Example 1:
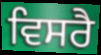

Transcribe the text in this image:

ਵਿਸਰੈ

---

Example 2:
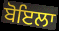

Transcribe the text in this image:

ਬੋਇਲਾ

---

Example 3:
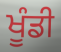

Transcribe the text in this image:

ਖੂੰਡੀ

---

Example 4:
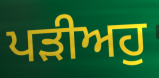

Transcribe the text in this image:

ਪੜੀਅਹੁ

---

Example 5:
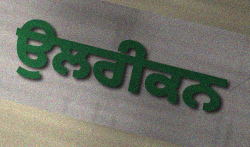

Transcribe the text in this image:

ਉਲਰੀਕਨ